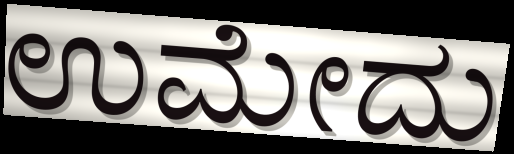
ಉಮೇದು